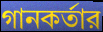
গানকর্তার